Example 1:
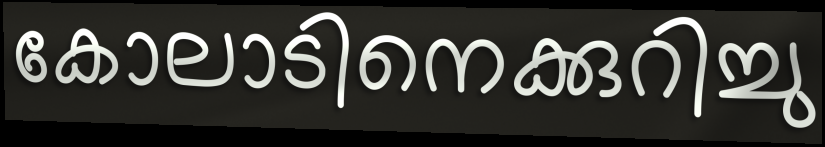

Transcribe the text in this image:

കോലാടിനെക്കുറിച്ചു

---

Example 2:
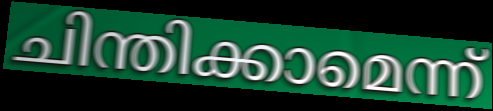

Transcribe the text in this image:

ചിന്തിക്കാമെന്ന്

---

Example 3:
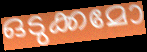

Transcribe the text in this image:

ഒടുക്കമോ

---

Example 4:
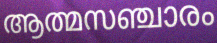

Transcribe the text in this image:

ആത്മസഞ്ചാരം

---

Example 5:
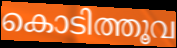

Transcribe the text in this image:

കൊടിത്തൂവ